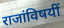
राजांविषयीं